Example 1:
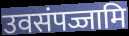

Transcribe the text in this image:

उवसंपज्जामि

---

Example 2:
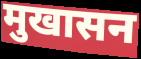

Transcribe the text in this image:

मुखासन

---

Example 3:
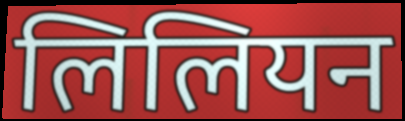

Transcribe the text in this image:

लिलियन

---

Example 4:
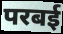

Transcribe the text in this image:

परबई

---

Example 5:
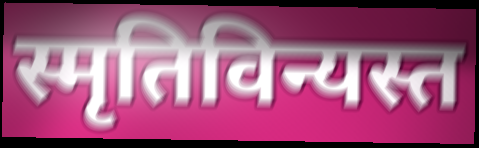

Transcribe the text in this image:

स्मृतिविन्यस्त